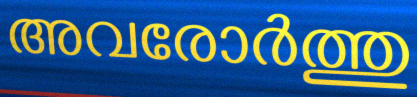
അവരോർത്തു